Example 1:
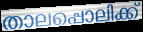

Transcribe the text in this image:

താലപ്പൊലിക്ക്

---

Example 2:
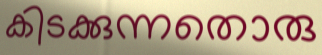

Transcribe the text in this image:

കിടക്കുന്നതൊരു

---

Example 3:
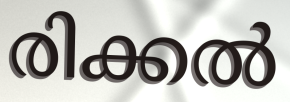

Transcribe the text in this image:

രിക്കൽ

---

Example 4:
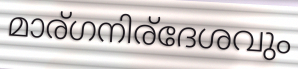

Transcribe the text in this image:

മാര്ഗനിര്ദേശവും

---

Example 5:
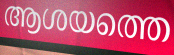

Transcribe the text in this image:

ആശയത്തെ